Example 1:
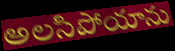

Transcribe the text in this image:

అలసిపోయాను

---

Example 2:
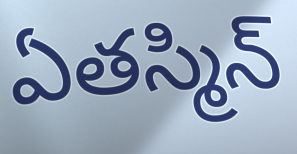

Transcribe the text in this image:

ఏతస్మిన్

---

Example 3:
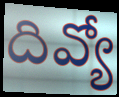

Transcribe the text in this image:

దివ్యో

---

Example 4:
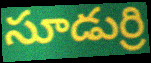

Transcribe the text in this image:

సూడుర్రి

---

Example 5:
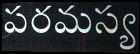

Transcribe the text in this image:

పరమస్య